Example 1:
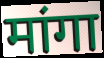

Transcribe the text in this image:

मांगा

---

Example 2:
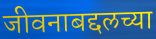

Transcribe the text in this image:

जीवनाबद्दलच्या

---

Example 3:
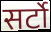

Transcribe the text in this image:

सर्टो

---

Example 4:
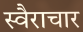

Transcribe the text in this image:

स्वैराचार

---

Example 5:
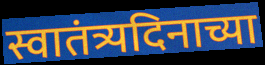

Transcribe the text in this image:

स्वातंत्र्यदिनाच्या